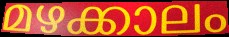
മഴക്കാലം